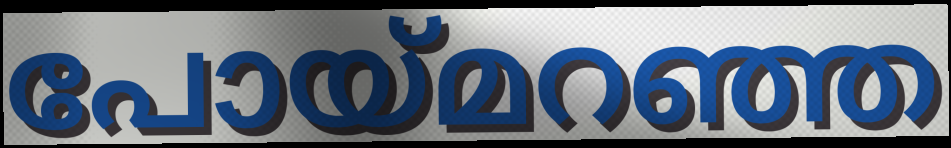
പോയ്മറഞ്ഞ